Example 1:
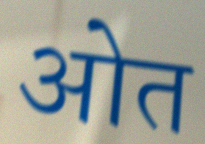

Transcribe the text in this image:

ओत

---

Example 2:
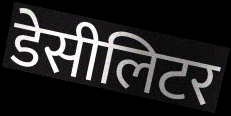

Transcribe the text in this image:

डेसीलिटर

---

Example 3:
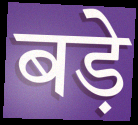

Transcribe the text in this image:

बड़े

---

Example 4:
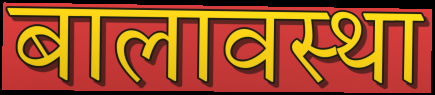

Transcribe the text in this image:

बालावस्था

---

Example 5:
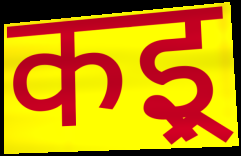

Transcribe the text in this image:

कइ्र